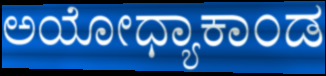
ಅಯೋಧ್ಯಾಕಾಂಡ